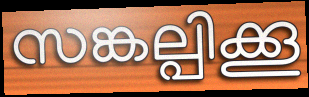
സങ്കല്പിക്കൂ